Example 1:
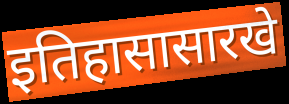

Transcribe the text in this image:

इतिहासासारखे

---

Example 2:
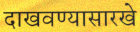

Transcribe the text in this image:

दाखवण्यासारखे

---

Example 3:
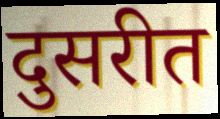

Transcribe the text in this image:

दुसरीत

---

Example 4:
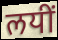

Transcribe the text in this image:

लयीं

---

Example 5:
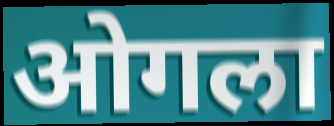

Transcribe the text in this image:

ओगला